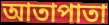
আতাপাতা